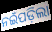
ନଇଁପଡ଼ିଲା